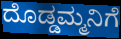
ದೊಡ್ಡಮ್ಮನಿಗೆ